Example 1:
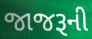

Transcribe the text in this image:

જાજરૂની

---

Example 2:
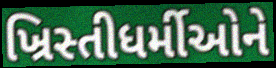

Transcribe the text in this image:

ખ્રિસ્તીધર્મીઓને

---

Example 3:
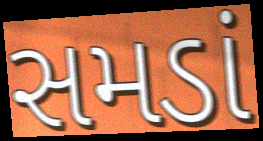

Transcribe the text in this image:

સમડાં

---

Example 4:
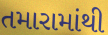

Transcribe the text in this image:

તમારામાંથી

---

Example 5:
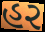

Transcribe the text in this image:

હર